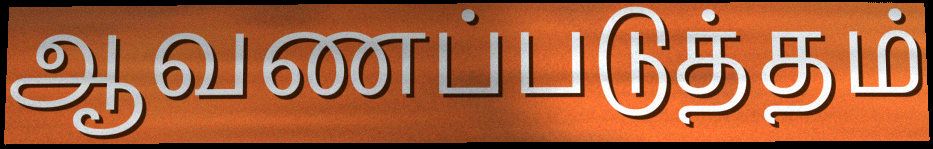
ஆவணப்படுத்தம்